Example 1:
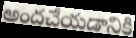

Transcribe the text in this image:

అందచేయడానికి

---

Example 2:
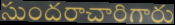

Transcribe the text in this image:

సుందరాచారిగారు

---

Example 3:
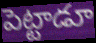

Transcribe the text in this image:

పెట్టాడూ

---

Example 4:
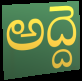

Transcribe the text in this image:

అద్దె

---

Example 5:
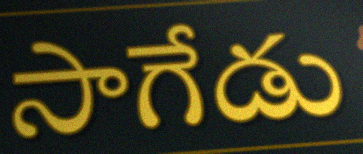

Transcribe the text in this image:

సాగేడు